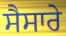
ਸੈਸਾਰੇ